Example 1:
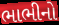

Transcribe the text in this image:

ભાભીનો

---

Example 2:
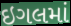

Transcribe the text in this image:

ઇગલમાં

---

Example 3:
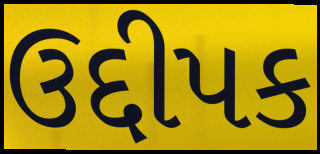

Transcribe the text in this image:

ઉદ્દીપક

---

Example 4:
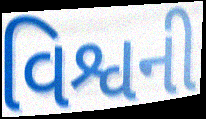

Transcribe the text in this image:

વિશ્વની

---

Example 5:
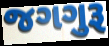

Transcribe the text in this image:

જગગુરૂ